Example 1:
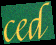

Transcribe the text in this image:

ced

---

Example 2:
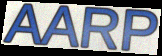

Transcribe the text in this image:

AARP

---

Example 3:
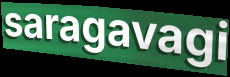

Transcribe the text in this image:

saragavagi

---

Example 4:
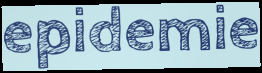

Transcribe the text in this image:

epidemie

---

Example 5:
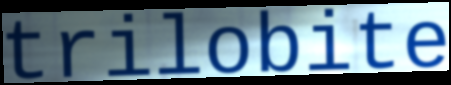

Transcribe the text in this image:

trilobite